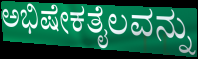
ಅಭಿಷೇಕತೈಲವನ್ನು